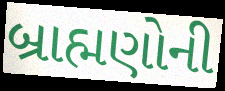
બ્રાહ્મણોની